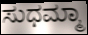
ಸುಧಮ್ಮಾ